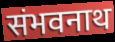
संभवनाथ